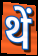
थें